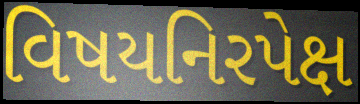
વિષયનિરપેક્ષ